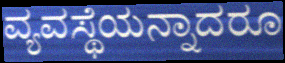
ವ್ಯವಸ್ಥೆಯನ್ನಾದರೂ